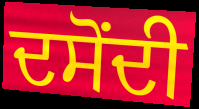
ਦਸੋਂਦੀ